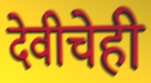
देवीचेही